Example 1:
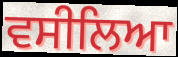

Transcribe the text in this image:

ਵਸੀਲਿਆ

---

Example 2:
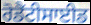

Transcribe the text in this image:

ਰੋਡੈਂਟੀਸਾਈਡ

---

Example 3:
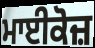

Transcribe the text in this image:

ਮਾਈਕੋਜ਼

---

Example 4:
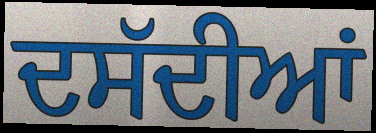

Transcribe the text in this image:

ਦਸੱਦੀਆਂ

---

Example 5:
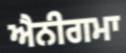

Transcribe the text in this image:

ਐਨੀਗਮਾ